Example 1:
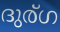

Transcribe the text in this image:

ദുര്ഗ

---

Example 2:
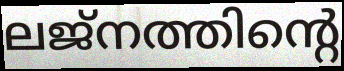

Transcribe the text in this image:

ലജ്നത്തിന്റെ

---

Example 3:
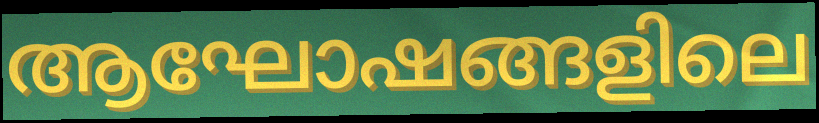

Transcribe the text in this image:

ആഘോഷങ്ങളിലെ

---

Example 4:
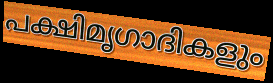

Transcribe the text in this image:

പക്ഷിമൃഗാദികളും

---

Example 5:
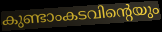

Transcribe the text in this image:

കുണ്ടാംകടവിന്റെയും